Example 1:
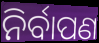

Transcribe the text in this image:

ନିର୍ବାପଣ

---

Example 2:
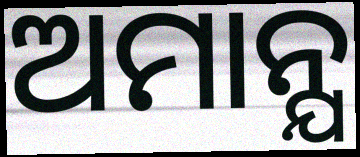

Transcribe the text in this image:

ଅମାନ୍ଯ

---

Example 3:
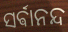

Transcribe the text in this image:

ସର୍ଵାନନ୍ଦ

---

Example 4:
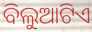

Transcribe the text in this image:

ବିଲୁଆଟିଏ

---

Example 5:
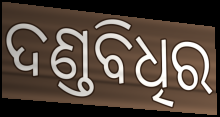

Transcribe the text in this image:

ଦଣ୍ଡବିଧିର